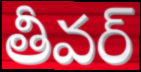
తీవర్